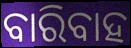
ବାରିବାହ